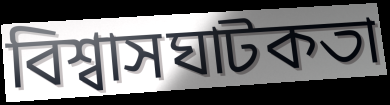
বিশ্বাসঘাটকতা